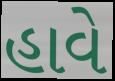
હાવે